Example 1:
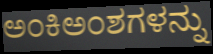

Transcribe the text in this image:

ಅಂಕಿಅಂಶಗಳನ್ನು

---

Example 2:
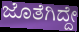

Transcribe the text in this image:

ಜೊತೆಗಿದ್ದೇ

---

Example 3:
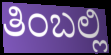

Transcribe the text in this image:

ತಿಂಬಲ್ಲಿ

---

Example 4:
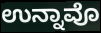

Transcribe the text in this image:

ಉನ್ನಾವೊ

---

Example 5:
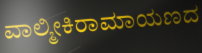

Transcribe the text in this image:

ವಾಲ್ಮೀಕಿರಾಮಾಯಣದ